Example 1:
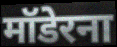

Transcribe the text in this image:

मॉडेरना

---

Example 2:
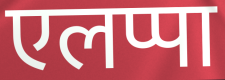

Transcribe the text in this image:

एलप्पा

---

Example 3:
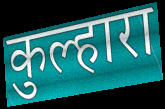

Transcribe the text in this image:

कुल्हारा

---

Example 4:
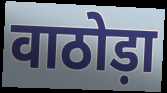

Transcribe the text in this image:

वाठोड़ा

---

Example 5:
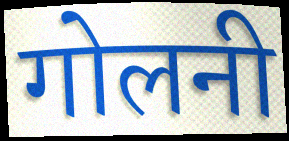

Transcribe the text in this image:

गोलनी